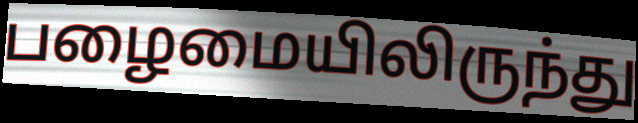
பழைமையிலிருந்து